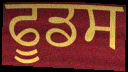
ਫੂਡਸ